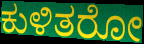
ಕುಳಿತರೋ